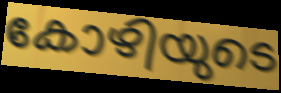
കോഴിയുടെ